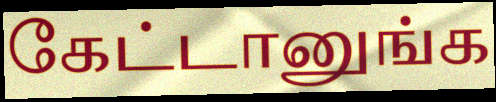
கேட்டானுங்க